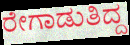
ರೇಗಾಡುತಿದ್ದ